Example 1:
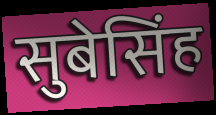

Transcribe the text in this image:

सुबेसिंह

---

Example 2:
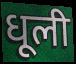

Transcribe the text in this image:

धूली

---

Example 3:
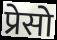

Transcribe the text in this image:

प्रेसो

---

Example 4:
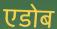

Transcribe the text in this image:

एडोब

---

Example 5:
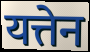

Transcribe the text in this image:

यत्तेन